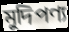
মুদিপণ্য